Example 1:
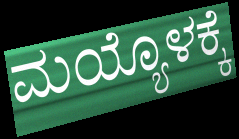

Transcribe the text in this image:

ಮಯ್ಯೊಳಕ್ಕೆ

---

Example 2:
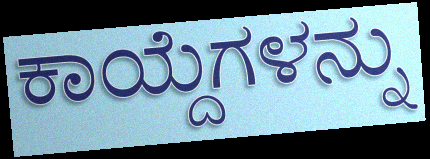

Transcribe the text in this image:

ಕಾಯ್ದೆಗಳನ್ನು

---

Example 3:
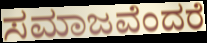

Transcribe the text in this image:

ಸಮಾಜವೆಂದರೆ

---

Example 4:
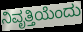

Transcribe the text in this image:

ನಿವೃತ್ತಿಯೆಂದು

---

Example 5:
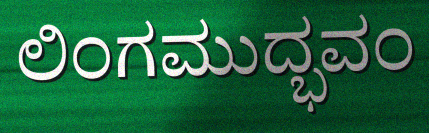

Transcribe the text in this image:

ಲಿಂಗಮುದ್ಭವಂ